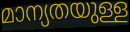
മാന്യതയുള്ള